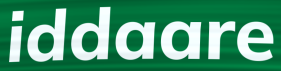
iddaare